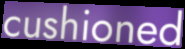
cushioned